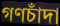
গণচাঁদা